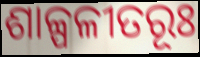
ଶାଳ୍ପଳୀତରୂଃ